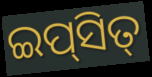
ଇପ୍‌ସିତ୍